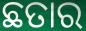
ଛତାର